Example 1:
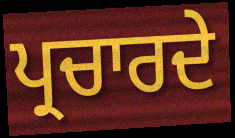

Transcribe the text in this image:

ਪ੍ਰਚਾਰਦੇ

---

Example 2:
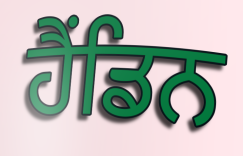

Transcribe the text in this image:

ਹੈਂਡਿਨ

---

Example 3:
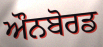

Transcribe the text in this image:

ਔਨਬੋਰਡ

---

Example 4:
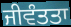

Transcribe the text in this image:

ਜੀਵੰਤਤਾ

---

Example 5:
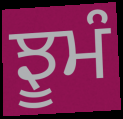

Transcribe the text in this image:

ਝੂਮੰ